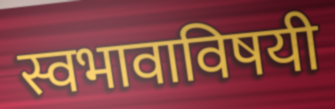
स्वभावाविषयी